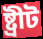
ষ্ট্ৰীট